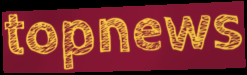
topnews